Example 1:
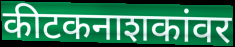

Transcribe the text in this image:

कीटकनाशकांवर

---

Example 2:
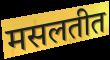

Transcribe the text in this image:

मसलतीत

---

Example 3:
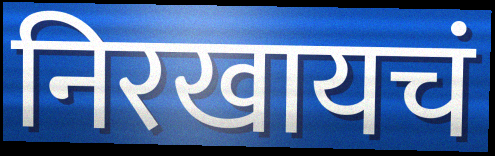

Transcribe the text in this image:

निरखायचं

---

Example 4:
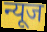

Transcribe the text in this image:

न्यूज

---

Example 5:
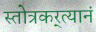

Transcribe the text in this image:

स्तोत्रकर्त्यानं